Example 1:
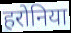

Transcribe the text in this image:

हरोनिया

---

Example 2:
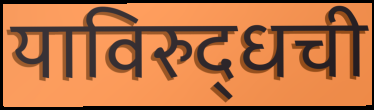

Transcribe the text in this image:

याविरुद्धची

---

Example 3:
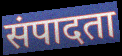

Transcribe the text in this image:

संपादता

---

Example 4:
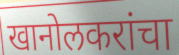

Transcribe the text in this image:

खानोलकरांचा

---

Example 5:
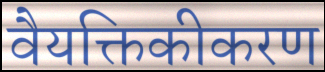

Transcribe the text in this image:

वैयक्तिकीकरण